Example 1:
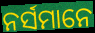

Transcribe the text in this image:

ନର୍ସମାନେ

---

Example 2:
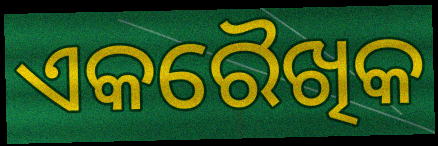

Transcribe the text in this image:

ଏକରୈଖିକ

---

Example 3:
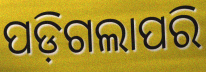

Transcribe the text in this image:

ପଡ଼ିଗଲାପରି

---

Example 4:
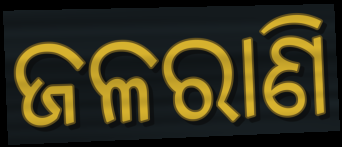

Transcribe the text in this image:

ଜଳରାଣି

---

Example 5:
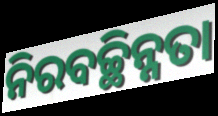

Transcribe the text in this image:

ନିରବଚ୍ଛିନ୍ନତା